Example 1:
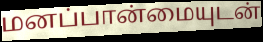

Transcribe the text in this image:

மனப்பான்மையுடன்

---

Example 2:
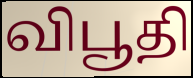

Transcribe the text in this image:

விபூதி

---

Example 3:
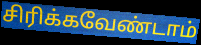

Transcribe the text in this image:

சிரிக்கவேண்டாம்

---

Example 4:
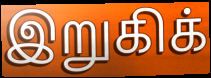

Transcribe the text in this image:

இறுகிக்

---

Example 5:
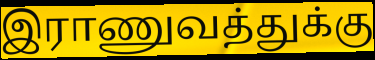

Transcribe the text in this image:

இராணுவத்துக்கு